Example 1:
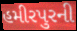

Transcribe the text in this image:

હમીરપુરની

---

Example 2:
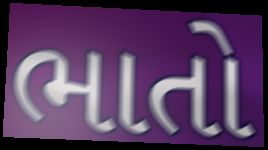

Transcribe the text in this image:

ભાતો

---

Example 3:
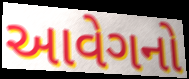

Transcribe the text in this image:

આવેગનો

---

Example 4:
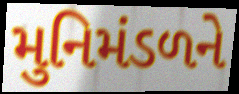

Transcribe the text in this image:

મુનિમંડળને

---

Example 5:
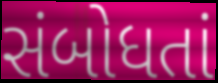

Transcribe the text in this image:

સંબોધતાં